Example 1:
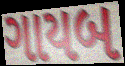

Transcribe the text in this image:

ગાયબ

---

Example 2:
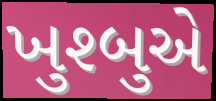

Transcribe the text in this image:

ખુશ્બુએ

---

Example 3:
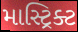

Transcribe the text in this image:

માસ્ટ્રિક્ટ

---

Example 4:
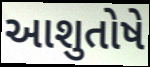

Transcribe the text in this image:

આશુતોષે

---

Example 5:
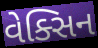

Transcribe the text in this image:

વેક્સિન